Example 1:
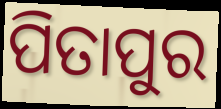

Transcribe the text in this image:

ପିତାପୁର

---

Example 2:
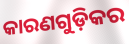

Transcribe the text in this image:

କାରଣଗୁଡ଼ିକର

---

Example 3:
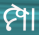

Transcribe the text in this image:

ମ୍ପା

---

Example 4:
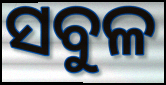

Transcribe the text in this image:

ସବୁଳ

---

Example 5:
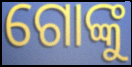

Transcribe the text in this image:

ଗୋଙ୍କୁ